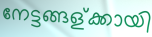
നേട്ടങ്ങള്ക്കായി